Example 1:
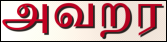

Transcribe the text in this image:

அவறர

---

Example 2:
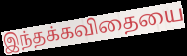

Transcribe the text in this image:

இந்தக்கவிதையை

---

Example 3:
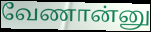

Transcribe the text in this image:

வேணான்னு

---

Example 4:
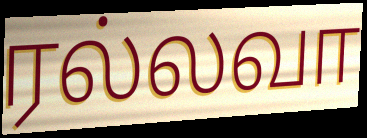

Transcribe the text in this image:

ரல்லவா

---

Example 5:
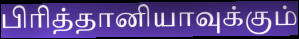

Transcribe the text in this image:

பிரித்தானியாவுக்கும்